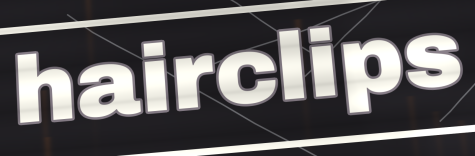
hairclips